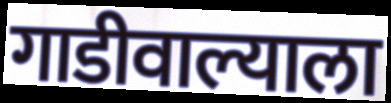
गाडीवाल्याला